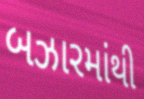
બઝારમાંથી